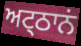
ਅਟ੍ਠਾਨਂ